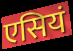
एसियं